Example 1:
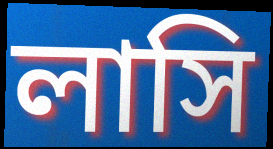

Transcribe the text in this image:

লাসি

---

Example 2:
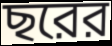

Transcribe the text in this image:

ছরের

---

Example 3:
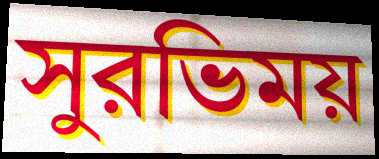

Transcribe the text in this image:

সুরভিময়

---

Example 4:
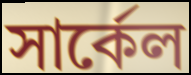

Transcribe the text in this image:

সার্কেল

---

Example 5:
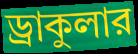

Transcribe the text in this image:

ড্রাকুলার